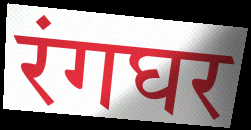
रंगघर